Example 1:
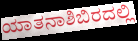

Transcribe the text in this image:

ಯಾತನಾಶಿಬಿರದಲ್ಲಿ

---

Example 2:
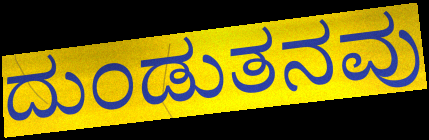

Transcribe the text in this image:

ದುಂಡುತನವು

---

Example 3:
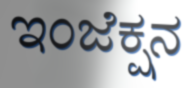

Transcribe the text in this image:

ಇಂಜೆಕ್ಷನ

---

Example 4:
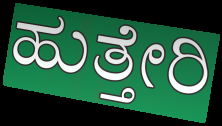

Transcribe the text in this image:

ಹುತ್ತೇರಿ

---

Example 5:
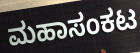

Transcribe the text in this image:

ಮಹಾಸಂಕಟ